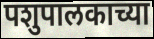
पशुपालकाच्या